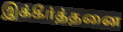
இக்கீர்த்தனை